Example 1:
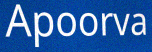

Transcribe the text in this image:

Apoorva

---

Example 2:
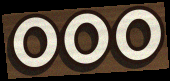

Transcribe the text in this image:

ooo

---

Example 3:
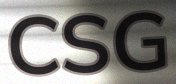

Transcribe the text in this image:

CSG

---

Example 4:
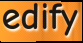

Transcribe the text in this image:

edify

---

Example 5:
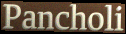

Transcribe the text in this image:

Pancholi